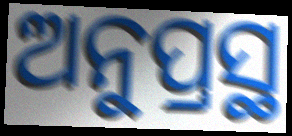
ଅନୁପ୍ରସ୍ଥ